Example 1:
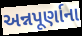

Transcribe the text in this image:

અન્નપૂર્ણાના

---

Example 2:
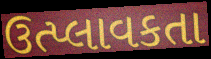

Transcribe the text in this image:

ઉત્પ્લાવકતા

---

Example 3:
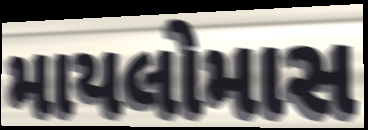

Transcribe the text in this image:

માયલોમાસ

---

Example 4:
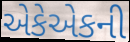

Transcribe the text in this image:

એકેએકની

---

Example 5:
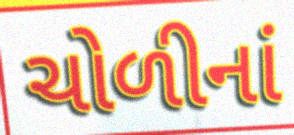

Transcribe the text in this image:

ચોળીનાં